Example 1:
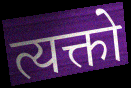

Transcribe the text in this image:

त्यक्तो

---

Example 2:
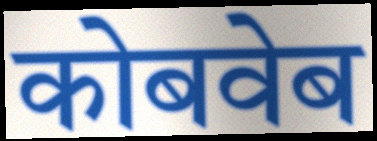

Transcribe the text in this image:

कोबवेब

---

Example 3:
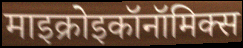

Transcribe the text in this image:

माइक्रोइकॉनॉमिक्स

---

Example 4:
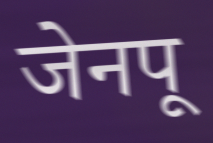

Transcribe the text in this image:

जेनपू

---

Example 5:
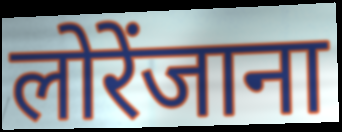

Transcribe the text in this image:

लोरेंजाना